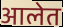
आलेत